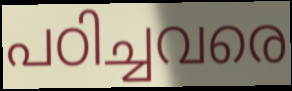
പഠിച്ചവരെ